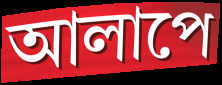
আলাপে